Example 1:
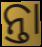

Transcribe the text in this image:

ନ୍ତା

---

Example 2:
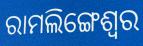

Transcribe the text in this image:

ରାମଲିଙ୍ଗେଶ୍ୱର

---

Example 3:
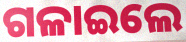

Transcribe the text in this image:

ଗଳାଇଲେ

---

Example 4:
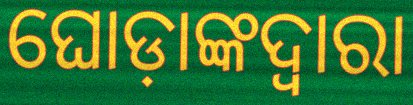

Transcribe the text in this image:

ଘୋଡ଼ାଙ୍କଦ୍ୱାରା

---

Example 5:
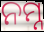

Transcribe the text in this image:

ନମ୍ନ